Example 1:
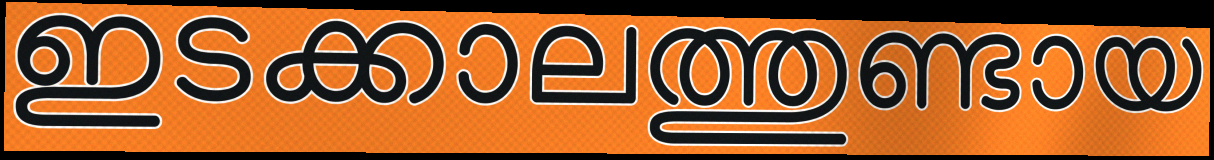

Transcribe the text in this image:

ഇടക്കാലത്തുണ്ടായ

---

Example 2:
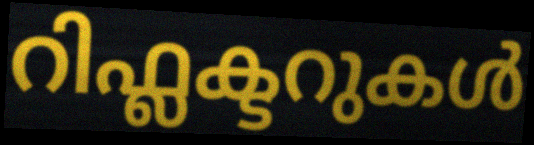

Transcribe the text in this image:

റിഫ്ലക്ടറുകൾ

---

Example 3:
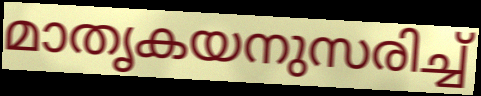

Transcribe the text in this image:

മാതൃകയനുസരിച്ച്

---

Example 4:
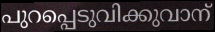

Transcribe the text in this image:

പുറപ്പെടുവിക്കുവാന്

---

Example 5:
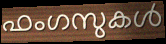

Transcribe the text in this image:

ഫംഗസുകൾ